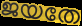
ജയതേ